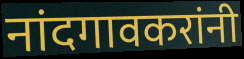
नांदगावकरांनी